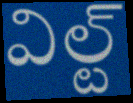
విల్ట్